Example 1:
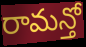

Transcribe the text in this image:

రామన్తో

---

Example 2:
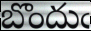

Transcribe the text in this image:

బొందుఁ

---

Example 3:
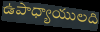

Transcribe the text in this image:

ఉపాధ్యాయులది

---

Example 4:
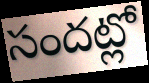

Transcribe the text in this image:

సందట్లో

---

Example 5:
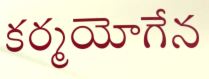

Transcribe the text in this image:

కర్మయోగేన